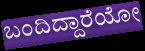
ಬಂದಿದ್ದಾರೆಯೋ